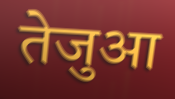
तेजुआ